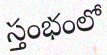
స్తంభంలో